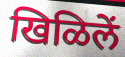
खिळिलें